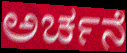
ಅರ್ಚನೆ